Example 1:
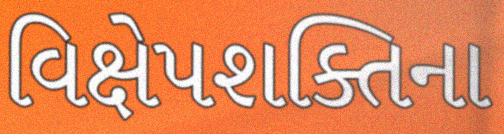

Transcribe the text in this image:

વિક્ષેપશક્તિના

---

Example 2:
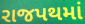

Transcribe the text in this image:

રાજપથમાં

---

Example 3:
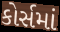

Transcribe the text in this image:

કોર્સમાં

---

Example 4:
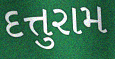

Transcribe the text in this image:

દત્તુરામ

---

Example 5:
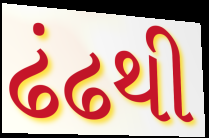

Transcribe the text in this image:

ઢંઢથી